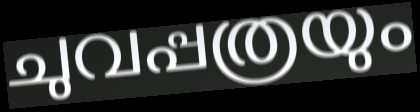
ചുവപ്പത്രയും